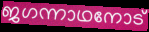
ജഗന്നാഥനോട്